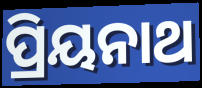
ପ୍ରିୟନାଥ